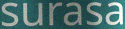
surasa